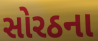
સોરઠના